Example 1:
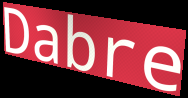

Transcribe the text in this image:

Dabre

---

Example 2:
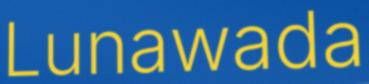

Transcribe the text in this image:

Lunawada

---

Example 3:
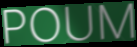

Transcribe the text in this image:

POUM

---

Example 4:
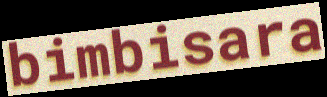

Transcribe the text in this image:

bimbisara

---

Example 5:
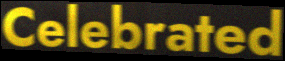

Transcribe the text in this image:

Celebrated